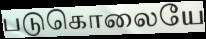
படுகொலையே